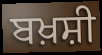
ਬਖ਼ਸ਼ੀ